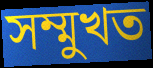
সম্মুখত